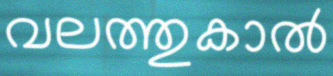
വലത്തുകാൽ